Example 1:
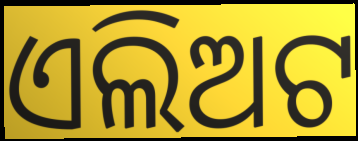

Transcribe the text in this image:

ଏଲିଅଟ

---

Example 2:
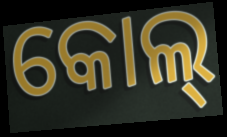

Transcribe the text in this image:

କୋଲ୍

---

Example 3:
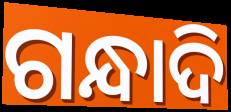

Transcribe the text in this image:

ଗନ୍ଧାଦି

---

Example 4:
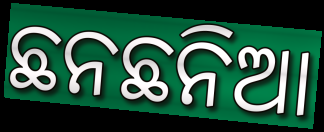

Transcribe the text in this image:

ଛନଛନିଆ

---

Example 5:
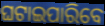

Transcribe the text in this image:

ଘଟାଇପାରିବେ